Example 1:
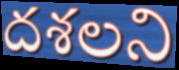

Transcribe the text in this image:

దశలని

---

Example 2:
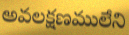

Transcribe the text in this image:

అవలక్షణములేని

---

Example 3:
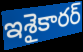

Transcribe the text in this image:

ఇశైకారర్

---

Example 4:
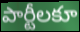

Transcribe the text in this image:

పార్టీలకూ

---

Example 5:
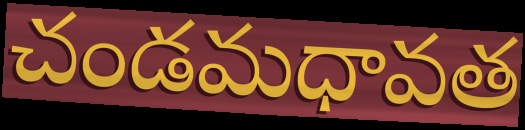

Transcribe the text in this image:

చండమధావత